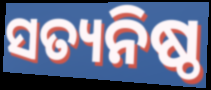
ସତ୍ୟନିଷ୍ଠ